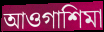
আওগাশিমা